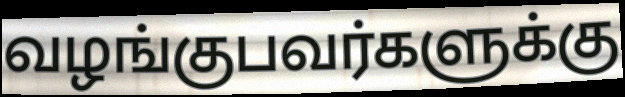
வழங்குபவர்களுக்கு